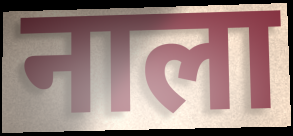
नाला